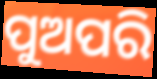
ପୁଅପରି